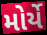
મોર્યે